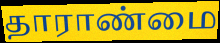
தாராண்மை